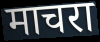
माचरा